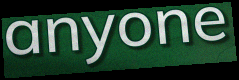
anyone